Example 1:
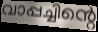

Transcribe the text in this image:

വാപ്പച്ചിന്റെ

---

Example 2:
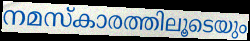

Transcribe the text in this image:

നമസ്കാരത്തിലൂടെയും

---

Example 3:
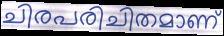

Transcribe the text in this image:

ചിരപരിചിതമാണ്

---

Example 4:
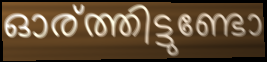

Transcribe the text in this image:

ഓര്ത്തിട്ടുണ്ടോ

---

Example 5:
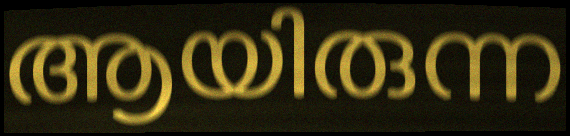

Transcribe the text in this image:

ആയിരുന്ന